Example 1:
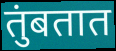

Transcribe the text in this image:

तुंबतात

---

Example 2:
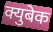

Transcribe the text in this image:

क्युबेक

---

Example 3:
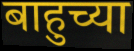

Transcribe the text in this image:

बाहुच्या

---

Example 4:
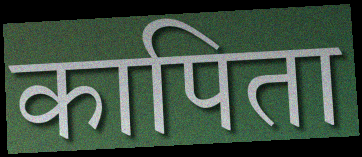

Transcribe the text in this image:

कापिता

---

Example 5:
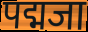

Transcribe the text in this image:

पद्मजा